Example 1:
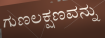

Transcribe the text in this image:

ಗುಣಲಕ್ಷಣವನ್ನು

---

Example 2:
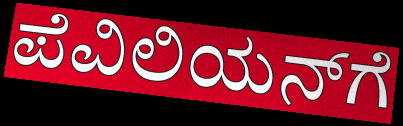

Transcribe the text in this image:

ಪೆವಿಲಿಯನ್‌ಗೆ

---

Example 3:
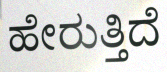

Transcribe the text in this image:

ಹೇರುತ್ತಿದೆ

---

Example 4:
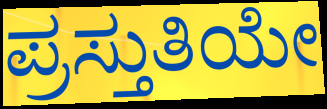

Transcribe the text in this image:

ಪ್ರಸ್ತುತಿಯೇ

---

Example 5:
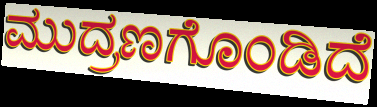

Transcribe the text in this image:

ಮುದ್ರಣಗೊಂಡಿದೆ